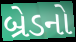
બ્રેડનો